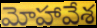
మోహావేశ